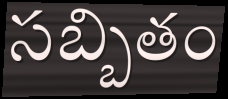
సబ్బితం